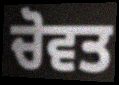
ਚੋਵਤ